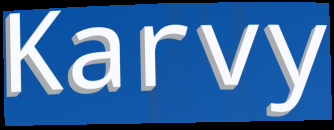
Karvy